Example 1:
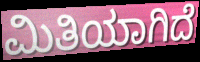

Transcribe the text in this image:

ಮಿತಿಯಾಗಿದೆ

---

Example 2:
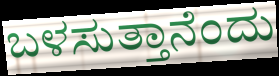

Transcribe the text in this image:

ಬಳಸುತ್ತಾನೆಂದು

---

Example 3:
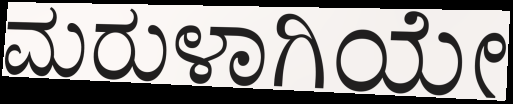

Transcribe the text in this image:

ಮರುಳಾಗಿಯೇ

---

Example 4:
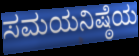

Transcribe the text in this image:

ಸಮಯನಿಷ್ಠೆಯ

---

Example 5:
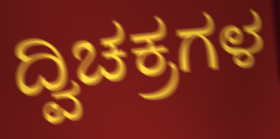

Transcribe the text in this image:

ದ್ವಿಚಕ್ರಗಳ